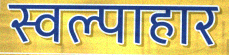
स्‍वल्‍पाहार